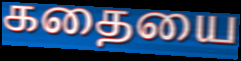
கதையை